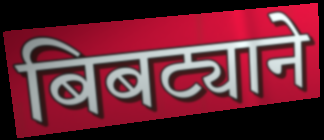
बिबट्याने